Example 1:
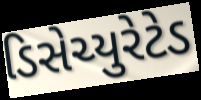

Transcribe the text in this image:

ડિસેચ્યુરેટેડ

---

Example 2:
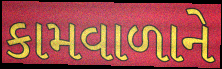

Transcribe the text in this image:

કામવાળાને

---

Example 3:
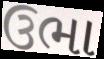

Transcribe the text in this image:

ઉભા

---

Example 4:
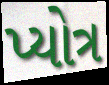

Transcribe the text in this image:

પ્યોત્ર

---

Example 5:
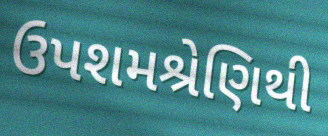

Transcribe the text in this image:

ઉપશમશ્રેણિથી